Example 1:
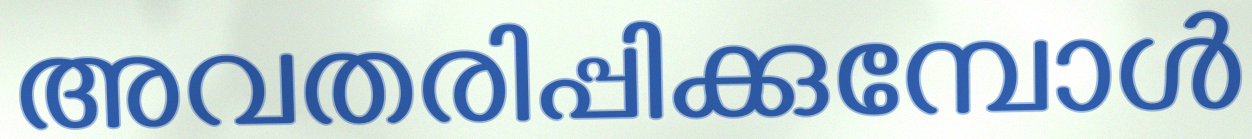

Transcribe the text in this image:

അവതരിപ്പിക്കുമ്പോൾ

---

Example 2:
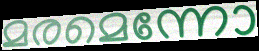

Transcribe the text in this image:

മരമെന്നോ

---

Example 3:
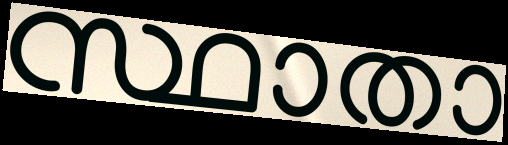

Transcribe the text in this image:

സ്ഥാതാ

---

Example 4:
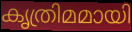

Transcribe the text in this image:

കൃത്രിമമായി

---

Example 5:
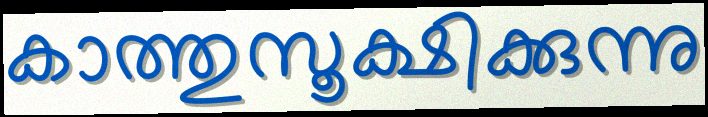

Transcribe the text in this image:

കാത്തുസൂക്ഷിക്കുന്നു